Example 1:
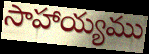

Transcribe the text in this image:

సాహాయ్యము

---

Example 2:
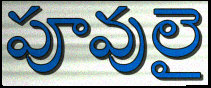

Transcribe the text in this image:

పూవులై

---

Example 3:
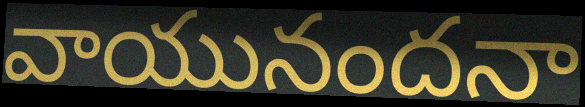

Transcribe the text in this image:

వాయునందనా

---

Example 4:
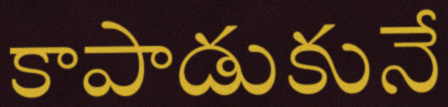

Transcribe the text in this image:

కాపాడుకునే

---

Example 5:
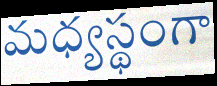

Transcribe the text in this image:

మధ్యస్థంగా